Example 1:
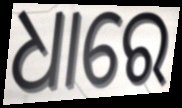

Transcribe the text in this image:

ଧାରେ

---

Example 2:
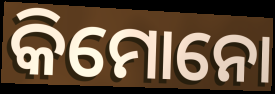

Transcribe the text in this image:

କିମୋନୋ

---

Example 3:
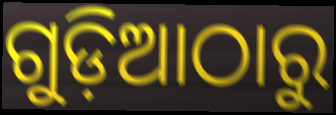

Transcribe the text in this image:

ଗୁଡ଼ିଆଠାରୁ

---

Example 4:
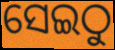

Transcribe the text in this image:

ସେଇଠୁ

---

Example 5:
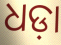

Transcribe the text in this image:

ଧଡ଼ା